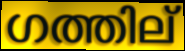
ഗത്തില്